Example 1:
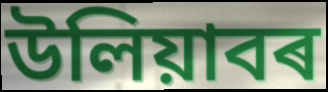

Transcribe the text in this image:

উলিয়াবৰ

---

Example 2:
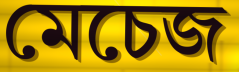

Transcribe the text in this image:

মেচেজ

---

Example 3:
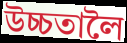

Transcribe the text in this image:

উচ্চতালৈ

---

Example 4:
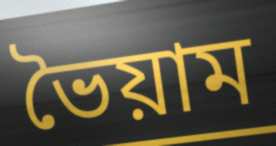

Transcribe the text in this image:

ভৈয়াম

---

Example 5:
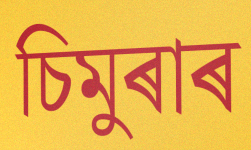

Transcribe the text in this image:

চিমুৰাৰ